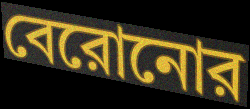
বেরোনোর